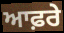
ਆਫ਼ਰੇ